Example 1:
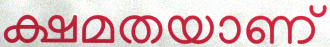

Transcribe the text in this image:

ക്ഷമതയാണ്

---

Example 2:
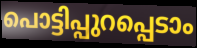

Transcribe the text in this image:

പൊട്ടിപ്പുറപ്പെടാം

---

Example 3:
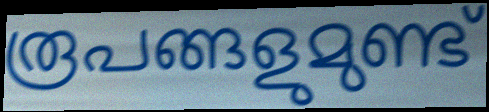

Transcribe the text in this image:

രൂപങ്ങളുമുണ്ട്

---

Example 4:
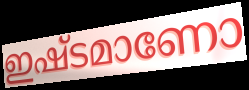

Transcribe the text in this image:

ഇഷ്ടമാണോ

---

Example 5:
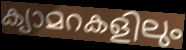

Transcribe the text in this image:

ക്യാമറകളിലും